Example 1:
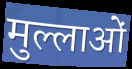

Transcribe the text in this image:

मुल्लाओं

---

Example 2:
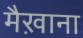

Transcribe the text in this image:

मैख़ाना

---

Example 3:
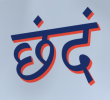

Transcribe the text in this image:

छंदं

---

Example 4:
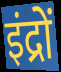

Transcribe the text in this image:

इंद्रों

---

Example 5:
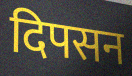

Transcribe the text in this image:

दिपसन